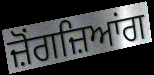
ਜ਼ੋਂਗਜ਼ਿਆਂਗ